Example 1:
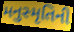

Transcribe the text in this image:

મનુસ્મૃતિની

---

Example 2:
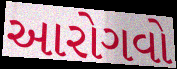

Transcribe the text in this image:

આરોગવો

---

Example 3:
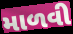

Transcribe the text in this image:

માળવી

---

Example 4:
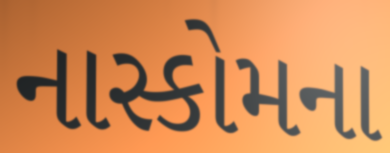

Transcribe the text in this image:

નાસ્કોમના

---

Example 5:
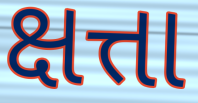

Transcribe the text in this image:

ક્ષત્તા